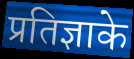
प्रतिज्ञाके